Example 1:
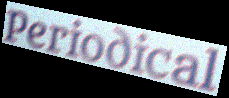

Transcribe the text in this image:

Periodical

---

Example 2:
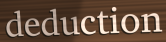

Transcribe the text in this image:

deduction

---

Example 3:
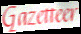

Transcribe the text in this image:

Gazetteer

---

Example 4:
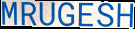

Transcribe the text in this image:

MRUGESH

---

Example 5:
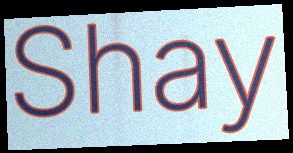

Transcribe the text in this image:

Shay